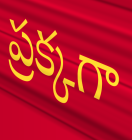
ప్రక్కగా